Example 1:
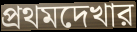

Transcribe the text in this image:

প্রথমদেখার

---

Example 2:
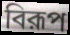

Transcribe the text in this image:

বিরূপ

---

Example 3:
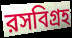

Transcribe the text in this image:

রসবিগ্রহ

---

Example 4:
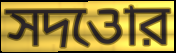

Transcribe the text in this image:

সদওোর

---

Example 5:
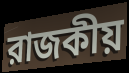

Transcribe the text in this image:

রাজকীয়